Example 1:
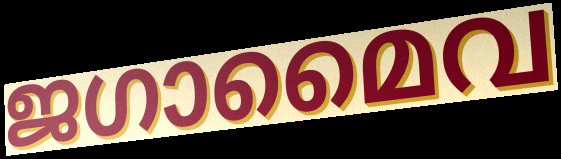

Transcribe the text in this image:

ജഗാമൈവ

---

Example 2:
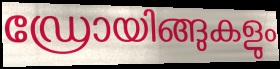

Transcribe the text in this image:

ഡ്രോയിങ്ങുകളും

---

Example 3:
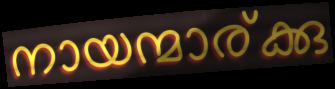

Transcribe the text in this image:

നായന്മാര്ക്കു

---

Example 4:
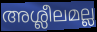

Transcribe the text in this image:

അശ്ലീലമല്ല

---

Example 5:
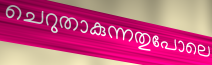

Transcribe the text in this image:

ചെറുതാകുന്നതുപോലെ